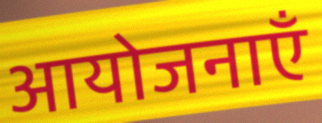
आयोजनाएँ